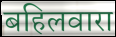
बहिलवारा